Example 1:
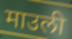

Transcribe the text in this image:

माउली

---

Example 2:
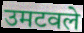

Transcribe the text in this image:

उमटवले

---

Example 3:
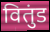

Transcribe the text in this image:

वितुंड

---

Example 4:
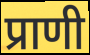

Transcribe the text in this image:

प्राणी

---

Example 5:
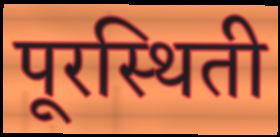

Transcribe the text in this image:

पूरस्थिती